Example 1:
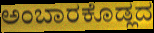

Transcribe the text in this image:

ಅಂಬಾರಕೊಡ್ಲದ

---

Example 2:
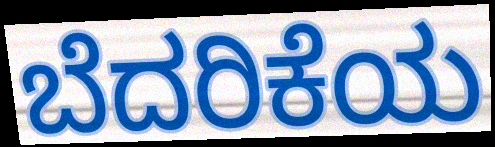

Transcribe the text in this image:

ಬೆದರಿಕೆಯ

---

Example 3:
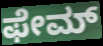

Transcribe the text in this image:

ಫೇಮ್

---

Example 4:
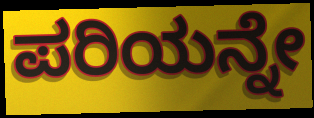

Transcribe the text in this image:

ಪರಿಯನ್ನೇ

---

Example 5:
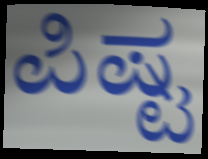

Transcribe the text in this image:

ಪಿಷ್ಟ